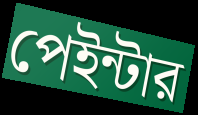
পেইন্টার